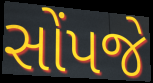
સોંપજે